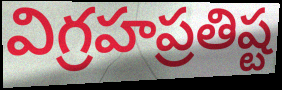
విగ్రహప్రతిష్ట